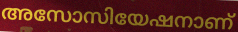
അസോസിയേഷനാണ്